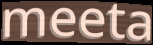
meeta